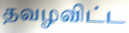
தவழவிட்ட